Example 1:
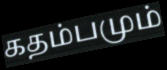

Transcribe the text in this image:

கதம்பமும்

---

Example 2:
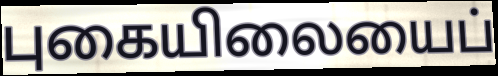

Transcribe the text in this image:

புகையிலையைப்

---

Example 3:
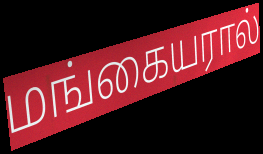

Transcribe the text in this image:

மங்கையரால்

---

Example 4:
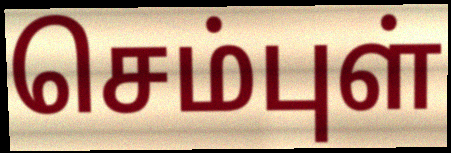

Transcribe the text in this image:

செம்புள்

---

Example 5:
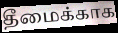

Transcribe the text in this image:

தீமைக்காக